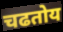
चढतोय